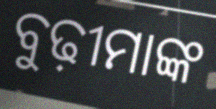
ବୁଢ଼ୀମାଙ୍କ